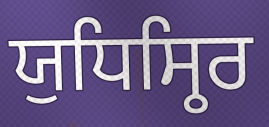
ਯੁਧਿਸ੍ਠਿਰ